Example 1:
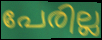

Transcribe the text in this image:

പേരില്ല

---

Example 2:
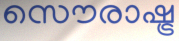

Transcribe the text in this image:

സൌരാഷ്ട്ര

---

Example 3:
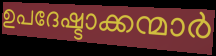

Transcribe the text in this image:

ഉപദേഷ്ടാക്കന്മാർ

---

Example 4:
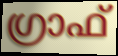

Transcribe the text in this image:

ഗ്രാഫ്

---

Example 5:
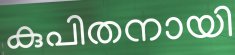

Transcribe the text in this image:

കുപിതനായി